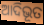
ଆଦିଭୂତ